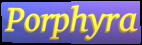
Porphyra